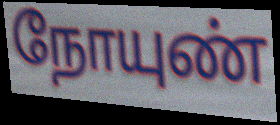
நோயுண்